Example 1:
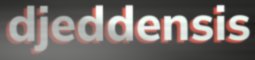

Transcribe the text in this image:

djeddensis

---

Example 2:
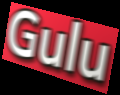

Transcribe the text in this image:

Gulu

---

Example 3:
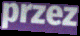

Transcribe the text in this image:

przez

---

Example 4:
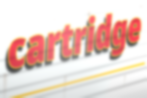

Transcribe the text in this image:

cartridge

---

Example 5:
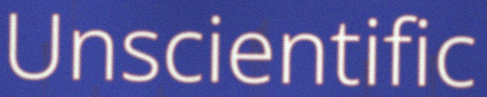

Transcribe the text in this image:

Unscientific